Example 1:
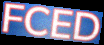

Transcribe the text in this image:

FCED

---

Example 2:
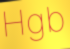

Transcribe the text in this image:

Hgb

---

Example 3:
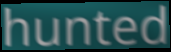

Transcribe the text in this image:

hunted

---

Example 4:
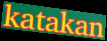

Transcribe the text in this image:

katakan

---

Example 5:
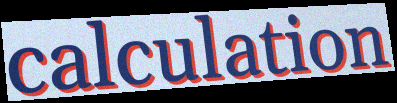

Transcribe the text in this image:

calculation